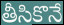
తీసికొనే